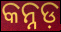
କନ୍ନଡ଼